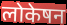
लोकेषन